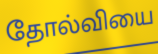
தோல்வியை